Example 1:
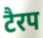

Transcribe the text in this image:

टैरप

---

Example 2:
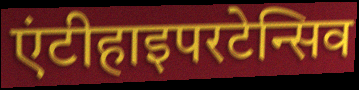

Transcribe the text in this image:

एंटीहाइपरटेन्सिव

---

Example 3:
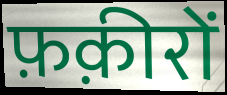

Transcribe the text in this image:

फ़क़ीरों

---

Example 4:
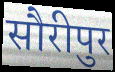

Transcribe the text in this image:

सौरीपुर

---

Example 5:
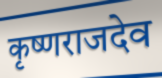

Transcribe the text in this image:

कृष्णराजदेव